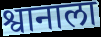
श्वानाला